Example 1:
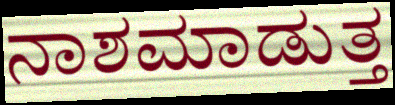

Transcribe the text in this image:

ನಾಶಮಾಡುತ್ತ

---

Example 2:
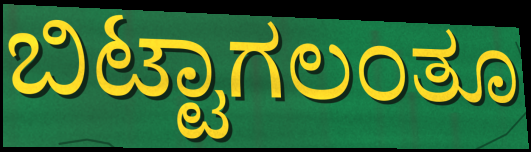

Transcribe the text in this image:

ಬಿಟ್ಟಾಗಲಂತೂ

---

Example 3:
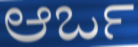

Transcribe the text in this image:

ಆರ್ಒ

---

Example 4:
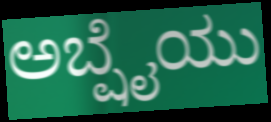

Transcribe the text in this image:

ಅಬ್ಷೈಯು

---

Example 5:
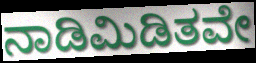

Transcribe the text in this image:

ನಾಡಿಮಿಡಿತವೇ